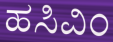
ಹಸಿವಿಂ